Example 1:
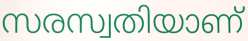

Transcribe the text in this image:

സരസ്വതിയാണ്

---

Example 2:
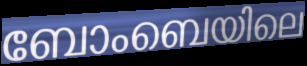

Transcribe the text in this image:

ബോംബെയിലെ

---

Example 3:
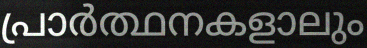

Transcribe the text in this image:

പ്രാർത്ഥനകളാലും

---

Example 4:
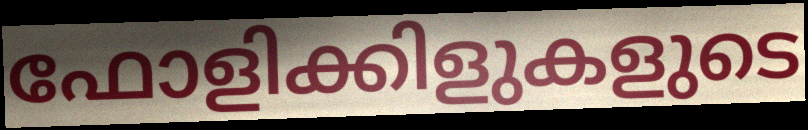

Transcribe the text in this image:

ഫോളിക്കിളുകളുടെ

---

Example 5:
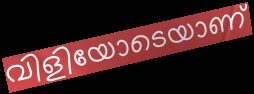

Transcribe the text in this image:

വിളിയോടെയാണ്